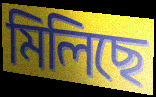
মিলিছে